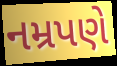
નમ્રપણે